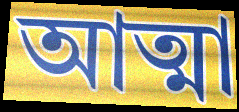
আত্মা